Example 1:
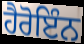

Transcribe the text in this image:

ਹੈਰੋਇੰਨ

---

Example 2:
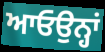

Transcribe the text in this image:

ਆਓਉਨ੍ਹਾਂ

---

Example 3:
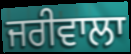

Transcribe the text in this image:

ਜਰੀਵਾਲਾ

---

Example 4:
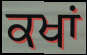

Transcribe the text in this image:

ਕਖਾਂ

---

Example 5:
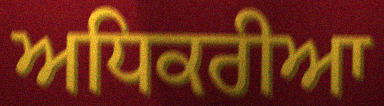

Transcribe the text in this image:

ਅਧਿਕਰੀਆ